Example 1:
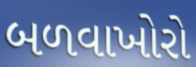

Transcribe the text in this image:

બળવાખોરો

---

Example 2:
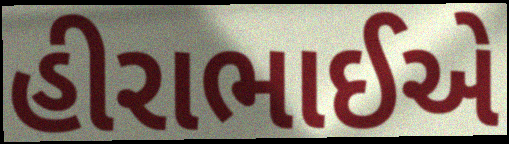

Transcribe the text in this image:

હીરાભાઈએ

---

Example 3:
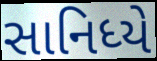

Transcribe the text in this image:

સાનિધ્યે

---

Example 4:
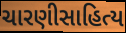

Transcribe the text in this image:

ચારણીસાહિત્ય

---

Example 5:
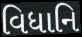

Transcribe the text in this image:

વિધાનિ